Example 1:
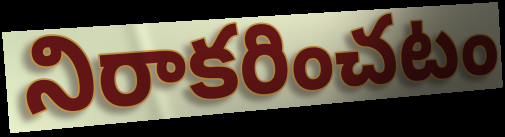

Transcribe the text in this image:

నిరాకరించటం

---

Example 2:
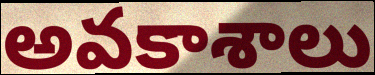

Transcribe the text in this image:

అవకాశాలు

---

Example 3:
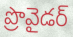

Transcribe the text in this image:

ప్రొవైడర్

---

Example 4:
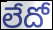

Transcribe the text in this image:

లేదో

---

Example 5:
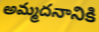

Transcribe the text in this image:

అమ్మదనానికి